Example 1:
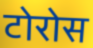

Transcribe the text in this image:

टोरोस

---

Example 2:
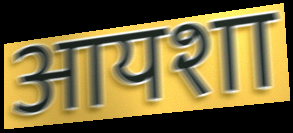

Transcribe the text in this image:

आयशा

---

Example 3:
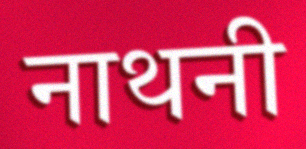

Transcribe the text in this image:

नाथनी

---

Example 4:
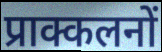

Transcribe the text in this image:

प्राक्कलनों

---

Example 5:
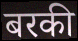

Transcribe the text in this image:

बरकी